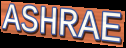
ASHRAE